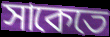
সাকেতে